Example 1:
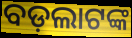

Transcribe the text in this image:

ବଡ଼ଲାଟଙ୍କ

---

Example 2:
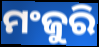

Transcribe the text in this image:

ମଂଜୁରି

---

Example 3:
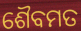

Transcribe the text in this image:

ଶୈବମତ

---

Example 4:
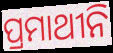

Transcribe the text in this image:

ପ୍ରମାଥୀନି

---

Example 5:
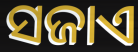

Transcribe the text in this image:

ସଜାଏ